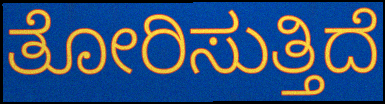
ತೋರಿಸುತ್ತಿದೆ